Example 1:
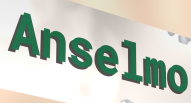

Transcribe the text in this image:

Anselmo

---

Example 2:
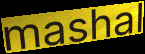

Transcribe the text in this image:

mashal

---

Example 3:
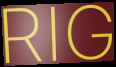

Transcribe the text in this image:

RIG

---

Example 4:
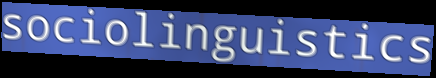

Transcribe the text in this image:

sociolinguistics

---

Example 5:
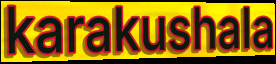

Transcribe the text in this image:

karakushala